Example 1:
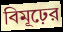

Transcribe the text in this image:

বিমূঢ়ের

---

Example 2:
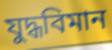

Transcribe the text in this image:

যুদ্ধবিমান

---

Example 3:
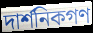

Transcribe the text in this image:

দার্শনিকগণ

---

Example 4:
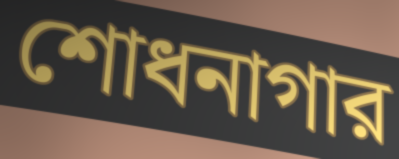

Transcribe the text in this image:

শোধনাগার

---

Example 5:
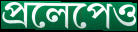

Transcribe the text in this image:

প্রলেপেও